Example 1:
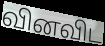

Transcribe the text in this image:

வினவிட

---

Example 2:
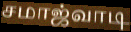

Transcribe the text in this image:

சமாஜ்வாடி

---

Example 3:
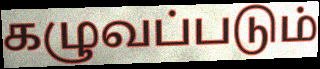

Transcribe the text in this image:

கழுவப்படும்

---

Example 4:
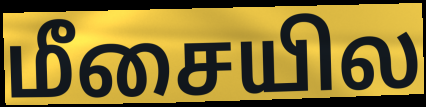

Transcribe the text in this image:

மீசையில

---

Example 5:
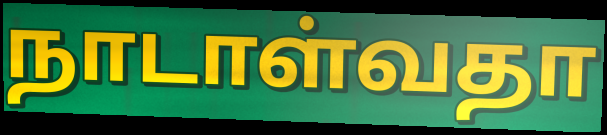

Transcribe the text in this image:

நாடாள்வதா